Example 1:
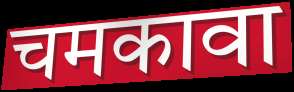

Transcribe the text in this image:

चमकावा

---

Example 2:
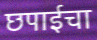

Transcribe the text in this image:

छपाईचा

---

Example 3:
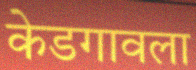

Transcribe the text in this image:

केडगावला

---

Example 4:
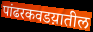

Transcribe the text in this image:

पांढरकवडय़ातील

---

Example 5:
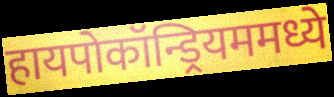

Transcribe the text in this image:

हायपोकॉन्ड्रियममध्ये